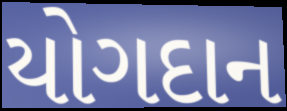
યોગદાન